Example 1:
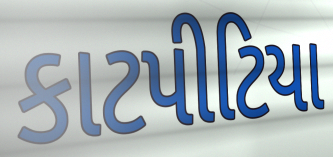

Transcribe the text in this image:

કાટપીટિયા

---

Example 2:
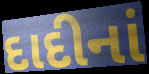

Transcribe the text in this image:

દાદીનાં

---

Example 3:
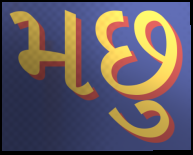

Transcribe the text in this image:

મછુ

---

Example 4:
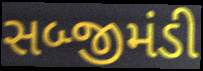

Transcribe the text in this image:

સબ્જીમંડી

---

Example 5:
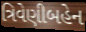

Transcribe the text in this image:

ત્રિવેણીબહેન